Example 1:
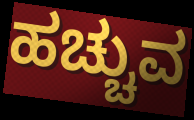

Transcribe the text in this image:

ಹಚ್ಚುವ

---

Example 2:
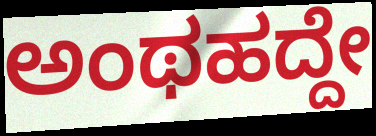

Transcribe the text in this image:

ಅಂಥಹದ್ದೇ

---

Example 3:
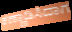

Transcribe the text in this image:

ಕಣ್ಣಾಡಿಸಿದಾಗ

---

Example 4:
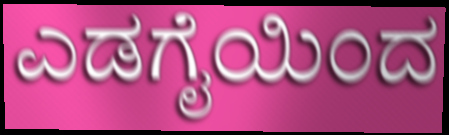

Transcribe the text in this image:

ಎಡಗೈಯಿಂದ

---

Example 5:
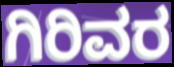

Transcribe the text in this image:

ಗಿರಿವರ